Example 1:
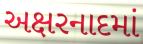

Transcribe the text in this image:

અક્ષરનાદમાં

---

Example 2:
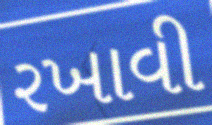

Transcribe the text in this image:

રખાવી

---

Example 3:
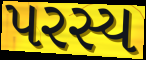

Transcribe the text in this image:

પરસ્ય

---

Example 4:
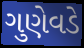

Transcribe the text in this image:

ગુણેવડે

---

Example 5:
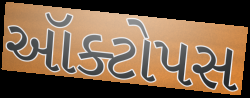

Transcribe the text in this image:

ઑક્ટોપસ